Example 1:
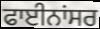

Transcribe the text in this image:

ਫਾਈਨਾਂਸਰ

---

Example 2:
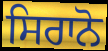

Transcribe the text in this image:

ਸਿਰਾਨੋ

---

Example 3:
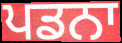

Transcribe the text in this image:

ਪਡਨਾ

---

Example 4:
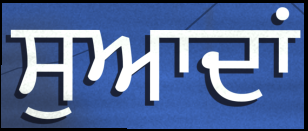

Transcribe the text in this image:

ਸੁਆਦਾਂ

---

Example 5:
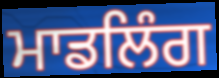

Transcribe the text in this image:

ਮਾਡਲਿੰਗ